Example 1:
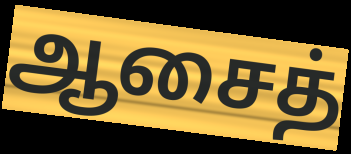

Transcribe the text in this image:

ஆசைத்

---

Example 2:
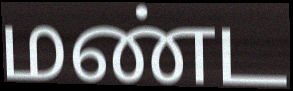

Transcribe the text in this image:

மண்ட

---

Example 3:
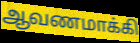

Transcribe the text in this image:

ஆவணமாக்கி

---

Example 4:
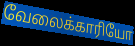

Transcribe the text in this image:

வேலைக்காரியோ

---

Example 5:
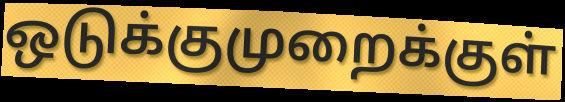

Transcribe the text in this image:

ஒடுக்குமுறைக்குள்